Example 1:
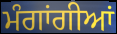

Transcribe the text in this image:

ਮੰਗਾਂਗੀਆਂ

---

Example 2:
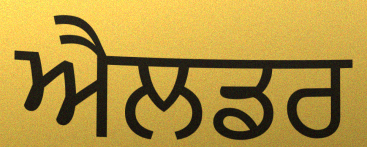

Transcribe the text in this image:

ਐਲਡਰ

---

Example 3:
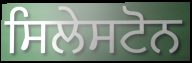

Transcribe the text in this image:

ਸਿਲੇਸਟੋਨ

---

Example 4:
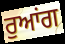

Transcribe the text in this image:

ਰੁਆਂਗ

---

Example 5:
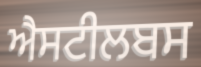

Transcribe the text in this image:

ਐਸਟੀਲਬਸ